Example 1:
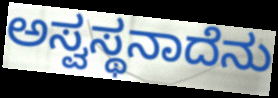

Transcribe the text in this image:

ಅಸ್ವಸ್ಥನಾದೆನು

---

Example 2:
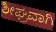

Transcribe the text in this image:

ಶೀಘ್ರವಾಗಿ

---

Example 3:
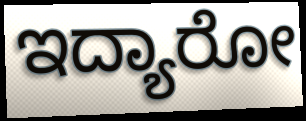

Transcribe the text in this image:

ಇದ್ಯಾರೋ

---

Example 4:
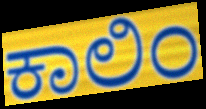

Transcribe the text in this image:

ಕಾಲಿಂ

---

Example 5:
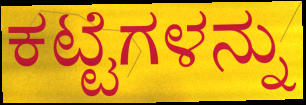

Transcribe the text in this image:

ಕಟ್ಟೆಗಳನ್ನು